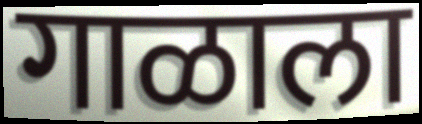
गाळाला